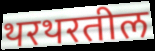
थरथरतील